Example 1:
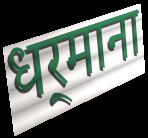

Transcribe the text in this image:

धर्माना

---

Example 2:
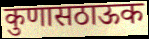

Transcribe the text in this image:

कुणासठाऊक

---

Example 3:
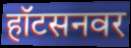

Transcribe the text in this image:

हॉटसनवर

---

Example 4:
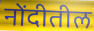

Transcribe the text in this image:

नोंदीतील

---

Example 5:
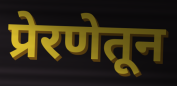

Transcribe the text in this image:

प्रेरणेतून